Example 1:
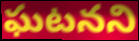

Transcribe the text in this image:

ఘటనని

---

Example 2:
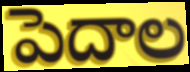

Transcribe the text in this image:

పెదాల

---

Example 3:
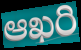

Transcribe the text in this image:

ఆఖరి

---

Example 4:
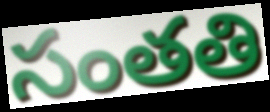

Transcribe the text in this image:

సంతతి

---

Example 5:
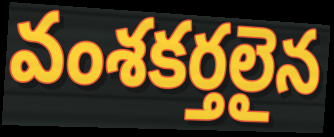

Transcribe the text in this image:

వంశకర్తలైన